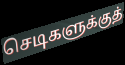
செடிகளுக்குத்